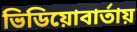
ভিডিয়োবার্তায়